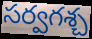
సర్వగశ్చ